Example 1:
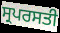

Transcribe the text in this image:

ਸ੍ਰਪਰਸਤੀ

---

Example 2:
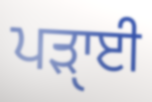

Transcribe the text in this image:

ਪੜਾੑਈ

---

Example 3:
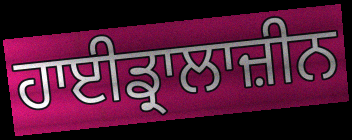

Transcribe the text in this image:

ਹਾਈਡ੍ਰਾਲਾਜ਼ੀਨ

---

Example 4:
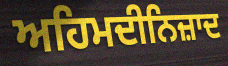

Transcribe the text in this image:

ਅਹਿਮਦੀਨਿਜ਼ਾਦ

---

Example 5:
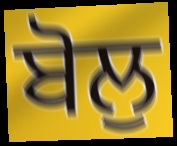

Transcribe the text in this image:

ਬੋਲੁ